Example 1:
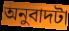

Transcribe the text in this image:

অনুবাদটা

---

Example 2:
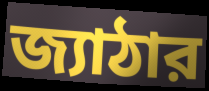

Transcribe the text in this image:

জ্যাঠার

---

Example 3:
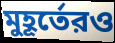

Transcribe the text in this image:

মুহূর্তেরও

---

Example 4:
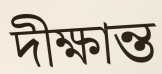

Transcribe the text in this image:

দীক্ষান্ত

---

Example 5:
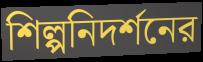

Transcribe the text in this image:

শিল্পনিদর্শনের